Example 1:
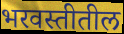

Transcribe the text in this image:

भरवस्तीतील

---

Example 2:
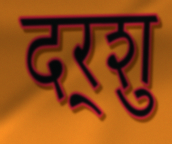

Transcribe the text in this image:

दर्शु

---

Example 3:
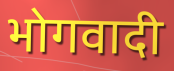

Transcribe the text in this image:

भोगवादी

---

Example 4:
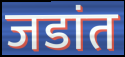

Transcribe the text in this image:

जडांत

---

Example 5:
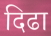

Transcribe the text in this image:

दिढा